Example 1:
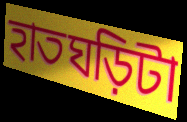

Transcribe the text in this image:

হাতঘড়িটা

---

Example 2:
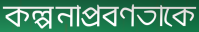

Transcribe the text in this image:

কল্পনাপ্রবণতাকে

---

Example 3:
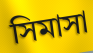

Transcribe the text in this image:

সিমাসা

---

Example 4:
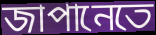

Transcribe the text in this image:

জাপানেতে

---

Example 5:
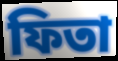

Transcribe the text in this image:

ফিতা